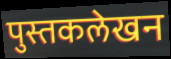
पुस्तकलेखन